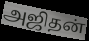
அஜிதன்